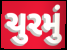
ચુરમું